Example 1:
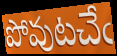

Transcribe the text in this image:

పోవుటచేఁ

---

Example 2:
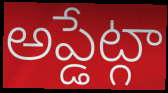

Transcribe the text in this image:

అప్డేట్గా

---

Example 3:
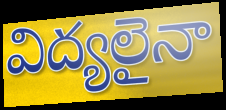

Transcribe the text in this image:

విద్యలైనా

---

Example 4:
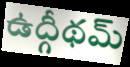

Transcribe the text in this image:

ఉద్గీథమ్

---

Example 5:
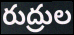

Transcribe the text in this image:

రుద్రుల